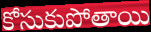
కోసుకుపోతాయి